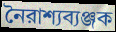
নৈরাশ্যব্যঞ্জক